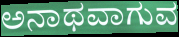
ಅನಾಥವಾಗುವ